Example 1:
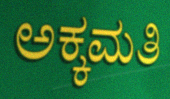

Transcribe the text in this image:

ಅಕ್ಕಮತಿ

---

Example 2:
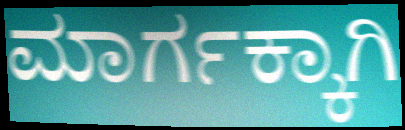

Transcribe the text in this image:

ಮಾರ್ಗಕ್ಕಾಗಿ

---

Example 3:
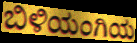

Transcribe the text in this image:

ಬಿಳಿಯಂಗಿಯ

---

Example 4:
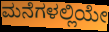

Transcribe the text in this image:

ಮನೆಗಳಲ್ಲಿಯೇ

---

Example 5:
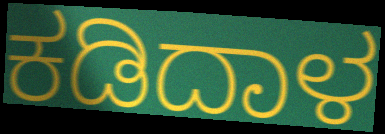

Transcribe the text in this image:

ಕಡಿದಾಳ